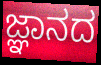
ಜ್ಞಾನದ